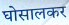
घोसालकर